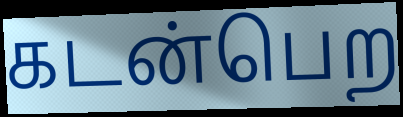
கடன்பெற